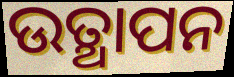
ଉତ୍ଥାପନ